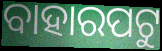
ବାହାରପଟୁ